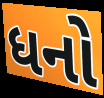
ધનો